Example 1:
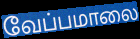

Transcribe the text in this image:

வேப்பமாலை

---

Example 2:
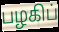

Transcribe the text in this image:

பழகிப்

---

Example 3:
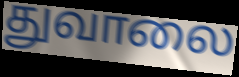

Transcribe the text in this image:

துவாலை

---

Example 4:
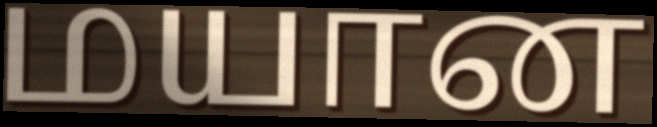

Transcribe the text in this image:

மயான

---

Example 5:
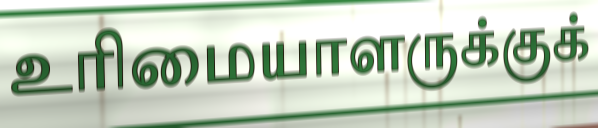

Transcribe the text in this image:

உரிமையாளருக்குக்